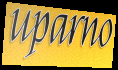
uparno